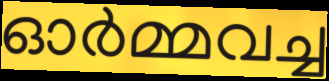
ഓർമ്മവച്ച